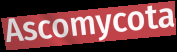
Ascomycota